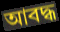
আবদ্ধ